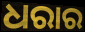
ଧରାର